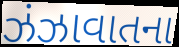
ઝંઝાવાતના